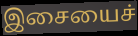
இசையைச்